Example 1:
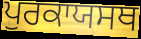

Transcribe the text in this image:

ਪੁਰਕਾਯਸਥ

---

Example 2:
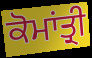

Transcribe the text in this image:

ਕੋਮਾਂਤ੍ਰੀ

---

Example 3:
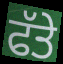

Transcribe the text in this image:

ਫੱਤੇ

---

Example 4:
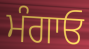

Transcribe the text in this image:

ਮੰਗਾਓ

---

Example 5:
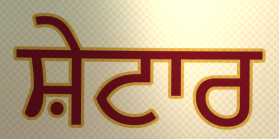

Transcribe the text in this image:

ਸ਼ੇਟਾਰ